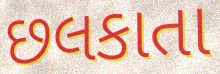
છલકાતા